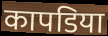
कापडिया